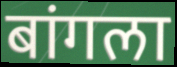
बांगला